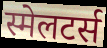
स्मेलटर्स